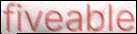
fiveable